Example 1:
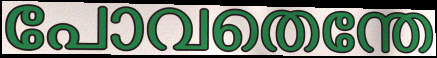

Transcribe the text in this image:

പോവതെന്തേ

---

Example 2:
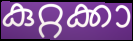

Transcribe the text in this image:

കുറ്റക്കാ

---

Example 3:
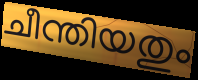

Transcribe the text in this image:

ചീന്തിയതും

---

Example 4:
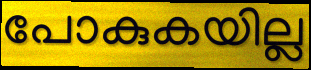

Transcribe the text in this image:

പോകുകയില്ല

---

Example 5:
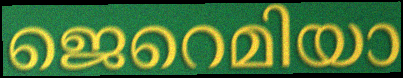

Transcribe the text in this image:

ജെറെമിയാ